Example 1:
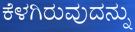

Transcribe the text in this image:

ಕೆಳಗಿರುವುದನ್ನು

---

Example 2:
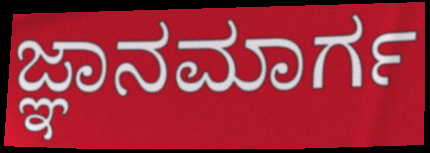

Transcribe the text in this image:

ಜ್ಞಾನಮಾರ್ಗ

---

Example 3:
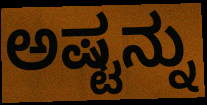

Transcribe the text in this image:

ಅಷ್ಟನ್ನು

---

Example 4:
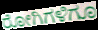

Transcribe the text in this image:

ರೋಗಿಗಳಿಗೂ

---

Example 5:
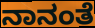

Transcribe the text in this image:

ನಾನಂತೆ